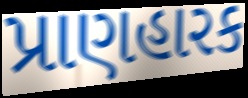
પ્રાણહારક